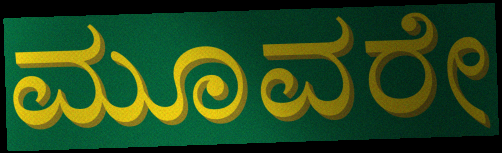
ಮೂವರೇ